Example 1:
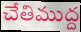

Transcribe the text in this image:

చేతిముద్ద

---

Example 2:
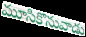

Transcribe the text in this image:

మూసికొనువాడు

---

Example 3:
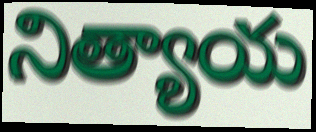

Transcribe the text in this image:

నిత్యాయ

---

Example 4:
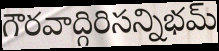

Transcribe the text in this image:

గౌరవాద్గిరిసన్నిభమ్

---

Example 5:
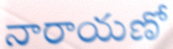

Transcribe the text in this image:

నారాయణో